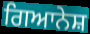
ਗਿਆਨੇਸ਼